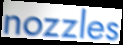
nozzles